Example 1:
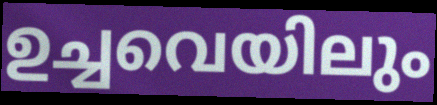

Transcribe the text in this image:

ഉച്ചവെയിലും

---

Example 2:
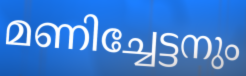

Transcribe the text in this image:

മണിച്ചേട്ടനും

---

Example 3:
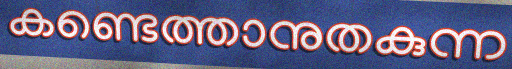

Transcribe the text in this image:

കണ്ടെത്താനുതകുന്ന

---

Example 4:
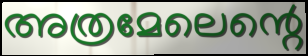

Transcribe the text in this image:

അത്രമേലെന്റെ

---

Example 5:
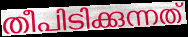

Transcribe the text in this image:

തീപിടിക്കുന്നത്